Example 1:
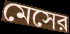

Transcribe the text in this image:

মেসের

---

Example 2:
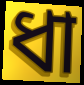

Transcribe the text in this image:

ধা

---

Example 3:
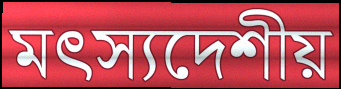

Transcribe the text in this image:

মৎস্যদেশীয়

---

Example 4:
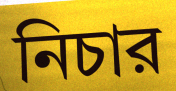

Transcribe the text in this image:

নিচার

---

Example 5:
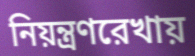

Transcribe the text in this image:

নিয়ন্ত্রণরেখায়